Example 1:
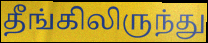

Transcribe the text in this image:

தீங்கிலிருந்து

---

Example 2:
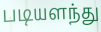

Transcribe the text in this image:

படியளந்து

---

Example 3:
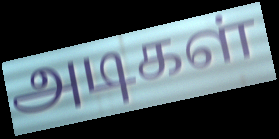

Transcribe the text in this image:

அடிகள்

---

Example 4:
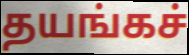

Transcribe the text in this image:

தயங்கச்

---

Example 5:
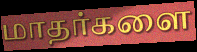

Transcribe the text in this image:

மாதர்களை